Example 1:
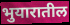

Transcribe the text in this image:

भुयारातील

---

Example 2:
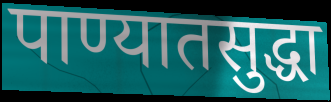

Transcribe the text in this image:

पाण्यातसुद्धा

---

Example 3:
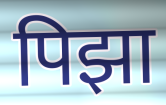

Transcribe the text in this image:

पिझा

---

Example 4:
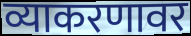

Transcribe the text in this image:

व्याकरणावर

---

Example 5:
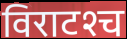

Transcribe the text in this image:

विराटश्च